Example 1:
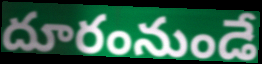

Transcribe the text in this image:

దూరంనుండే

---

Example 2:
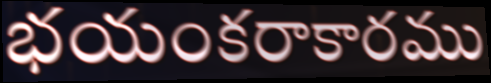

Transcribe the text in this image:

భయంకరాకారము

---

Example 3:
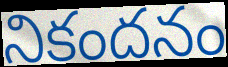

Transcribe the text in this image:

నికందనం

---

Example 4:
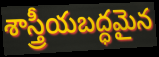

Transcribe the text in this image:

శాస్త్రీయబద్ధమైన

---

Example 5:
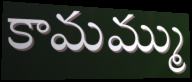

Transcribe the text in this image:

కామమ్ము